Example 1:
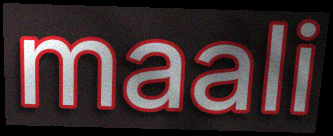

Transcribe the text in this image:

maali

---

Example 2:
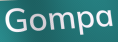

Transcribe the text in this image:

Gompa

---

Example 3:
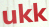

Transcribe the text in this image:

ukk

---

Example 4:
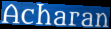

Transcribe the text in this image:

Acharan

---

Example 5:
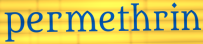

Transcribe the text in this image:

permethrin